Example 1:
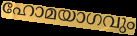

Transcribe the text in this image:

ഹോമയാഗവും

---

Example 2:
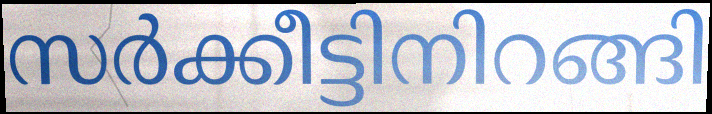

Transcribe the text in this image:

സർക്കീട്ടിനിറങ്ങി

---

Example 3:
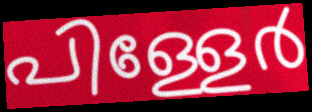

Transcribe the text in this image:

പിള്ളേർ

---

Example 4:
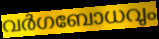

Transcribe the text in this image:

വർഗബോധവും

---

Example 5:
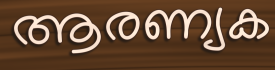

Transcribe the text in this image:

ആരണ്യക